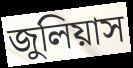
জুলিয়াস